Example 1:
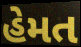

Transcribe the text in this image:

હેમત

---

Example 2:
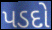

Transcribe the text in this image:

પડદો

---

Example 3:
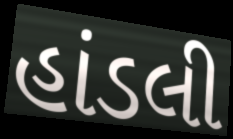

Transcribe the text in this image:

હાંડલી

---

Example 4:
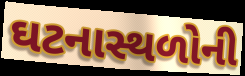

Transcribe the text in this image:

ઘટનાસ્થળોની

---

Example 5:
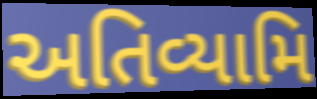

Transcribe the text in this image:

અતિવ્યામિ